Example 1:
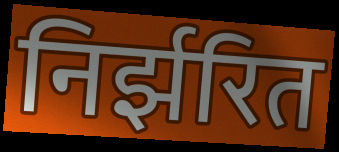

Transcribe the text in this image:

निर्झरित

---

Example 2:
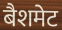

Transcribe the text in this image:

बैशमेट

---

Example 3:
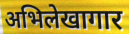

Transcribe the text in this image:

अभिलेखागार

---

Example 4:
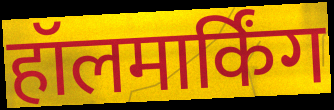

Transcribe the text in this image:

हॉलमार्किंग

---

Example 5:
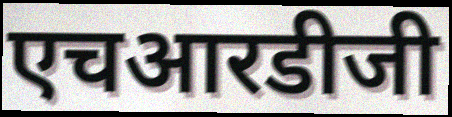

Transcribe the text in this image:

एचआरडीजी